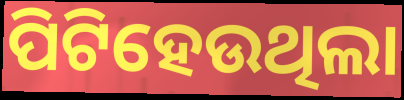
ପିଟିହେଉଥିଲା